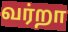
வர்றா